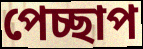
পেচ্ছাপ